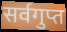
सर्वगुप्त